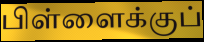
பிள்ளைக்குப்